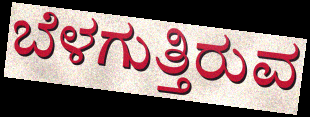
ಬೆಳಗುತ್ತಿರುವ